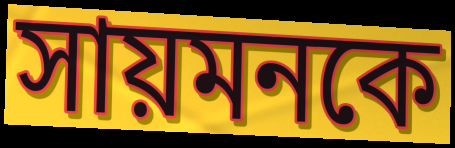
সায়মনকে